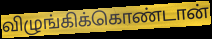
விழுங்கிக்கொண்டான்